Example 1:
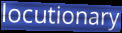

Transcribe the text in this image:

locutionary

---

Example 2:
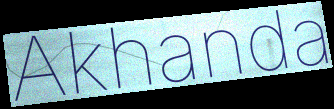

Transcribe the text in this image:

Akhanda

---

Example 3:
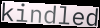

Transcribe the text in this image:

kindled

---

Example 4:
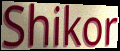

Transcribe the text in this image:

Shikor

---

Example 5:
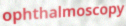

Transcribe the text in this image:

ophthalmoscopy